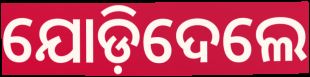
ଯୋଡ଼ିଦେଲେ